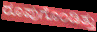
ರೂಪುಗೊಂಡಿತ್ತು